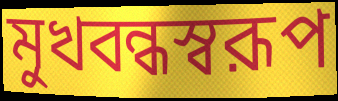
মুখবন্ধস্বরূপ